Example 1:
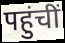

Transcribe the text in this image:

पहुंचीं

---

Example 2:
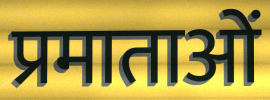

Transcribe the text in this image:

प्रमाताओं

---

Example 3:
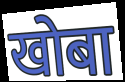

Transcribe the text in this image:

खोबा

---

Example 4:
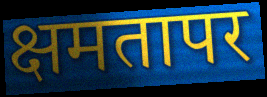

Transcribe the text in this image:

क्षमतापर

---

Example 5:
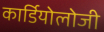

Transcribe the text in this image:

कार्डियोलोजी